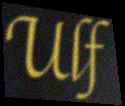
Ulf